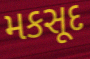
મકસૂદ